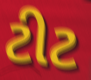
ટીટ